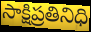
సాక్షిప్రతినిధి